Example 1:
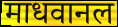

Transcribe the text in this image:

माधवानल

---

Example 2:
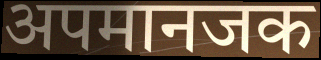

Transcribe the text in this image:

अपमानजक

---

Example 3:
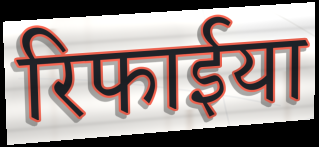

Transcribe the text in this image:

रिफाईया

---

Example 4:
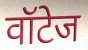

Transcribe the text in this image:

वॉटेज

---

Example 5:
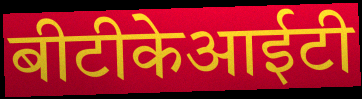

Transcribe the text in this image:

बीटीकेआईटी